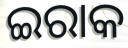
ଇରାକ